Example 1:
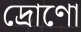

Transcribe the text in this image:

দ্রোণো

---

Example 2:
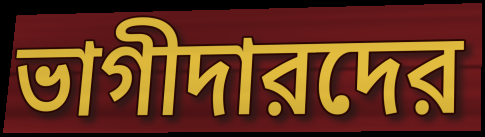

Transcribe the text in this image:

ভাগীদারদের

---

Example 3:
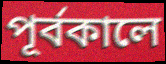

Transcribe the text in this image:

পূর্বকালে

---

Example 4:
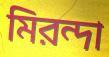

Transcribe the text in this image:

মিরন্দা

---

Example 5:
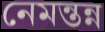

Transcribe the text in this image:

নেমন্তন্ন